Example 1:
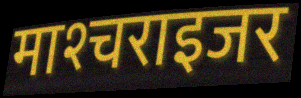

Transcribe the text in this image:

माश्चराइजर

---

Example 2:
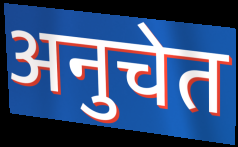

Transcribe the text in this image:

अनुचेत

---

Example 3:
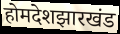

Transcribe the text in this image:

होमदेशझारखंड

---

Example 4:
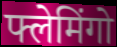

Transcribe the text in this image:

फ्लेमिंगो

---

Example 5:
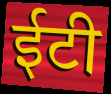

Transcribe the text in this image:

ईटी